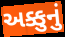
અક્કુનું